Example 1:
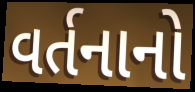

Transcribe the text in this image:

વર્તનાનો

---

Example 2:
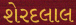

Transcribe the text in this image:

શેરદલાલ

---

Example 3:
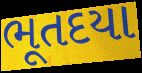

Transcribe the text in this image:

ભૂતદયા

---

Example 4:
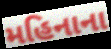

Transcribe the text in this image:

મહિનાના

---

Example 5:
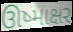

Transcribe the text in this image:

ઊષ્માક્ષર